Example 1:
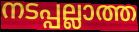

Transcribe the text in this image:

നടപ്പല്ലാത്ത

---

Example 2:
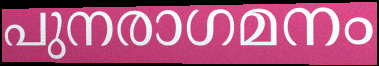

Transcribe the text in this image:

പുനരാഗമനം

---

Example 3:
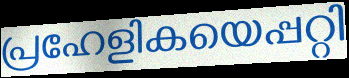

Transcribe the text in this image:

പ്രഹേളികയെപ്പറ്റി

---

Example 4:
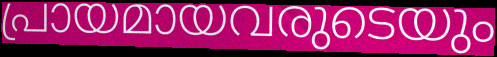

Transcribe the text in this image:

പ്രായമായവരുടെയും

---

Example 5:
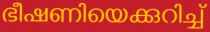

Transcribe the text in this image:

ഭീഷണിയെക്കുറിച്ച്